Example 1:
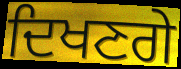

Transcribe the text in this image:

ਦਿਖਣਗੇ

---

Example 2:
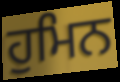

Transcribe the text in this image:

ਹੁਮਿਨ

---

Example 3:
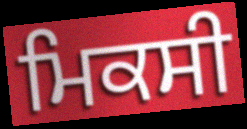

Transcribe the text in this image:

ਮਿਕਸੀ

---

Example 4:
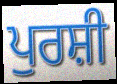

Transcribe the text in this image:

ਪੁਰਸ਼ੀ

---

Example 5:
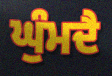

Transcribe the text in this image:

ਘੁੰਮਦੈ